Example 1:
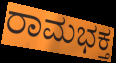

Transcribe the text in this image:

ರಾಮಭಕ್ತ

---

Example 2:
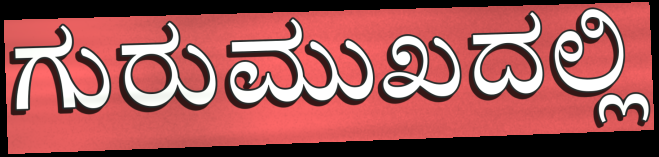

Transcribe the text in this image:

ಗುರುಮುಖದಲ್ಲಿ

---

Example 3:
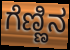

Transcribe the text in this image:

ಗೆಣ್ಣಿನ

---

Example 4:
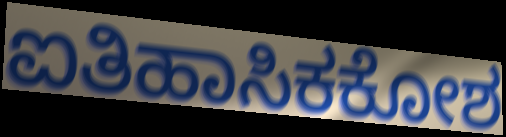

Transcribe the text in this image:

ಐತಿಹಾಸಿಕಕೋಶ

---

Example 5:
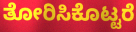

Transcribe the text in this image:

ತೋರಿಸಿಕೊಟ್ಟರೆ